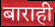
बाराही